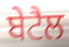
ਬੇਟੈਲ